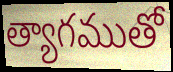
త్యాగముతో